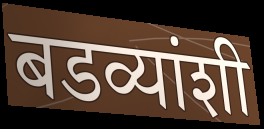
बडव्यांशी